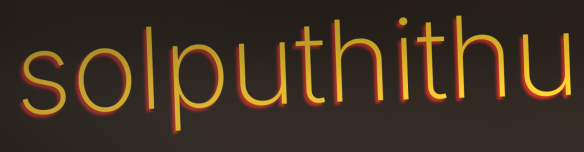
solputhithu